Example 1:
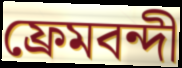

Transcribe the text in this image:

ফ্রেমবন্দী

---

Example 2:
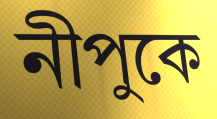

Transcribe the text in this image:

নীপুকে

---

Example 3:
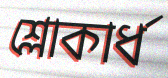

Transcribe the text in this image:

শ্লোকার্ধ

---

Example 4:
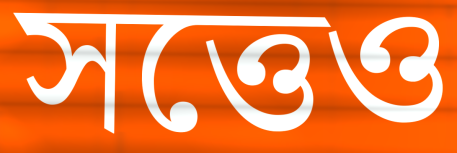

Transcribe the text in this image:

সত্তেও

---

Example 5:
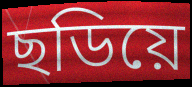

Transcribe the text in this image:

ছডিয়ে